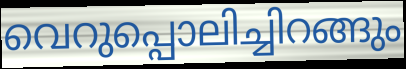
വെറുപ്പൊലിച്ചിറങ്ങും